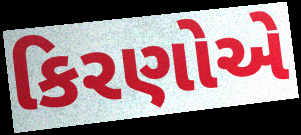
કિરણોએ